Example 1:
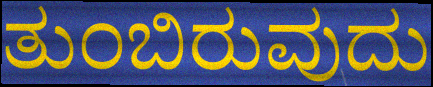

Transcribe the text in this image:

ತುಂಬಿರುವುದು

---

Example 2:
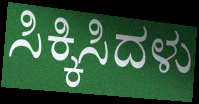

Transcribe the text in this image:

ಸಿಕ್ಕಿಸಿದಳು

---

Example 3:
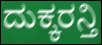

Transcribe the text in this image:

ದುಕ್ಕರನ್ತಿ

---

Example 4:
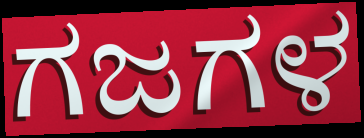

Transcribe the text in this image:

ಗಜಗಳ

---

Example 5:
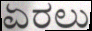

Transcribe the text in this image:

ಏರಲು